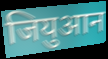
जियुआन